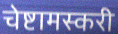
चेष्टामस्करी